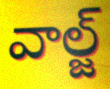
వాల్జ్